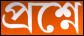
প্ৰশ্নে